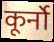
कूर्नो